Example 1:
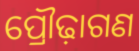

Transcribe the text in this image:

ପ୍ରୌଢ଼ାଗଣ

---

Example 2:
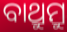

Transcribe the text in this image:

ବାଥ୍ରୁମ୍ରୁ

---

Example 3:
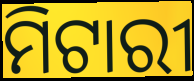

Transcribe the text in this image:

ମିଟାରୀ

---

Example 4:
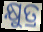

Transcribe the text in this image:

କ୍ଷୁତ୍ର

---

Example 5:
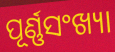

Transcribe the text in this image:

ପୂର୍ଣ୍ଣସଂଖ୍ୟା